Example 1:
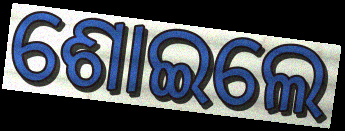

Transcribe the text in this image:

ଶୋଇଲେ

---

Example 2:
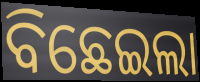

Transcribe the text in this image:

ବିଛେଇଲା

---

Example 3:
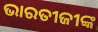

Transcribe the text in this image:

ଭାରତୀଜୀଙ୍କ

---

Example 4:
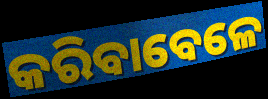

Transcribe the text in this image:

କରିବାବେଳେ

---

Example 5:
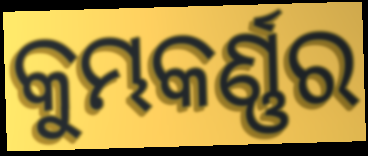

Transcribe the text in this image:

କୁମ୍ଭକର୍ଣ୍ଣର